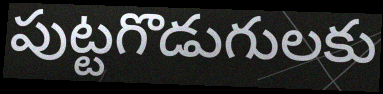
పుట్టగొడుగులకు